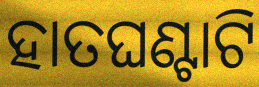
ହାତଘଣ୍ଟାଟି